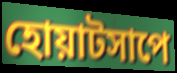
হোয়াটসাপে